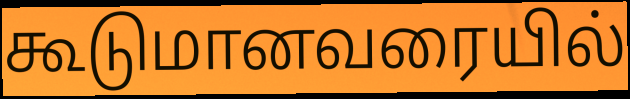
கூடுமானவரையில்